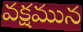
వక్షమున